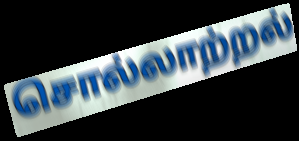
சொல்லாற்றல்